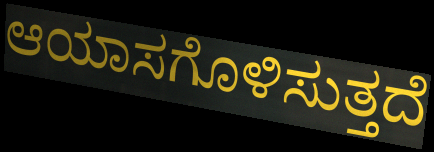
ಆಯಾಸಗೊಳಿಸುತ್ತದೆ